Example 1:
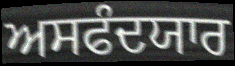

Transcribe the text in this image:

ਅਸਫੰਦਯਾਰ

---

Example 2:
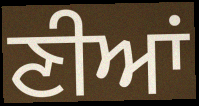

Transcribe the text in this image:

ਣੀਆਂ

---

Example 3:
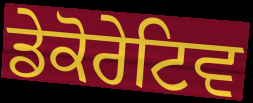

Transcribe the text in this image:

ਡੇਕੋਰੇਟਿਵ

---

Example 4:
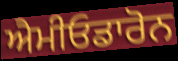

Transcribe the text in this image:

ਐਮੀਓਡਾਰੋਨ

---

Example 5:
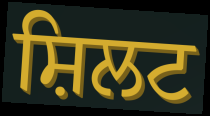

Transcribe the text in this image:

ਸ਼ਿਲਟ